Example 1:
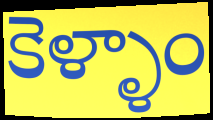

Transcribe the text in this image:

కెళ్ళాం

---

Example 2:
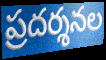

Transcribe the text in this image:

ప్రదర్శనల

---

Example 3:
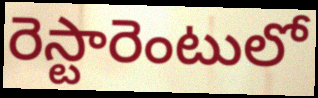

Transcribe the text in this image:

రెస్టారెంటులో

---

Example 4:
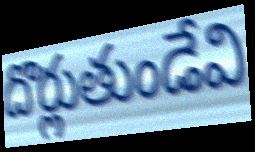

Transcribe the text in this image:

దొర్లుతుండేవి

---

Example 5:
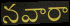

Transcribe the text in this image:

నవారా